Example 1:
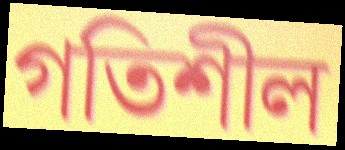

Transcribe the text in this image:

গতিশীল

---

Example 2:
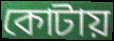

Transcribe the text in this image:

কোটায়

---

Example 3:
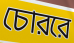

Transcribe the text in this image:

চোররে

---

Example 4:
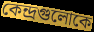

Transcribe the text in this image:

কেন্দ্রগুলোকে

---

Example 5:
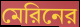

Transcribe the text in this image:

মেরিনের